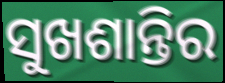
ସୁଖଶାନ୍ତିର